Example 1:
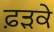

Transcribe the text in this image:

ਫ਼ਡ਼ਕੇ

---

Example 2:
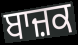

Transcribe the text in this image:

ਬਾਜ਼ਕ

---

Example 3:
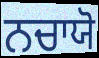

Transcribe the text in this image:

ਨਚਾਯੋ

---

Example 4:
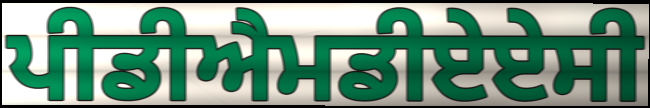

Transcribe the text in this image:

ਪੀਡੀਐਮਡੀਏਏਸੀ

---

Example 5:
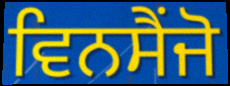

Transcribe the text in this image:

ਵਿਨਸੈਂਜੋ